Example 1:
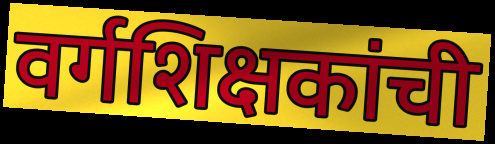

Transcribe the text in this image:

वर्गशिक्षकांची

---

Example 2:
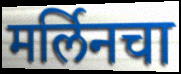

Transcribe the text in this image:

मर्लिनचा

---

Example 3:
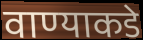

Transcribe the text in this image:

वाण्याकडे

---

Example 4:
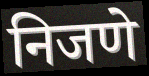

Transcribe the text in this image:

निजणे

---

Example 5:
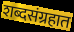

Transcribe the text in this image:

शब्दसंग्रहात